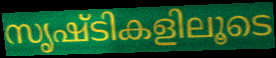
സൃഷ്ടികളിലൂടെ